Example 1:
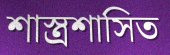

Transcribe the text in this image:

শাস্ত্রশাসিত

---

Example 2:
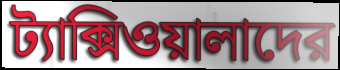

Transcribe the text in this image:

ট্যাক্সিওয়ালাদের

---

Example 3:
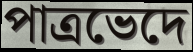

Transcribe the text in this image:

পাত্রভেদে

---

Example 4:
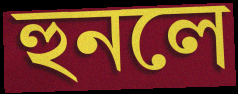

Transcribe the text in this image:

হুনলে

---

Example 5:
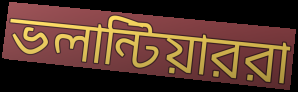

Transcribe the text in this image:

ভলান্টিয়াররা